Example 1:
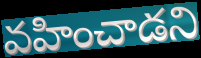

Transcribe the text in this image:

వహించాడని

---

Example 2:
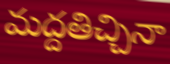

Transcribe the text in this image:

మద్దతిచ్చినా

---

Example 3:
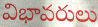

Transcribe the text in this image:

విభావరులు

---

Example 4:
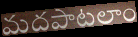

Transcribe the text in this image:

మదపాటలాం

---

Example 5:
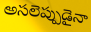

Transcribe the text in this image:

అసలెప్పుడైనా